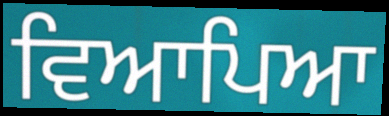
ਵਿਆਪਿਆ